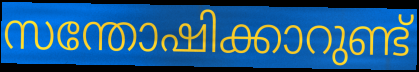
സന്തോഷിക്കാറുണ്ട്